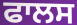
ਫਾਲਸ